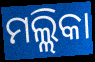
ମଲ୍ଲିକା